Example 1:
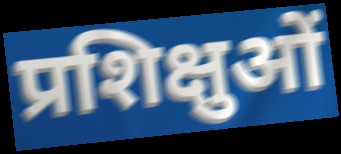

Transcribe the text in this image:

प्रशिक्षुओं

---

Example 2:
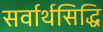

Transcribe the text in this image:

सर्वार्थसिद्धि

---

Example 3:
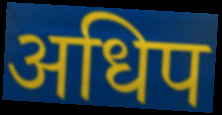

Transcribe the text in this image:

अधिप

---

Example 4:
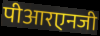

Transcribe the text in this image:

पीआरएनजी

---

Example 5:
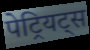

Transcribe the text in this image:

पेट्रियट्स